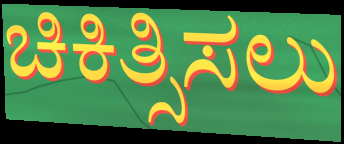
ಚಿಕಿತ್ಸಿಸಲು